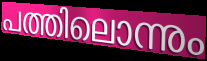
പത്തിലൊന്നും